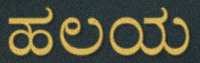
ಹಲಯ